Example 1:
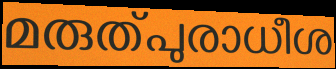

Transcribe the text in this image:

മരുത്പുരാധീശ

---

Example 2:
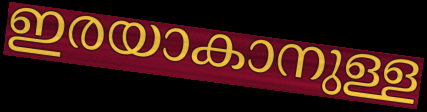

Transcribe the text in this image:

ഇരയാകാനുള്ള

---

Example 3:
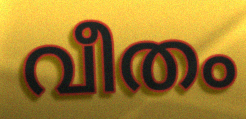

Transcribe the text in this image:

വീതം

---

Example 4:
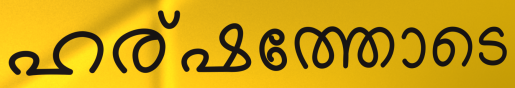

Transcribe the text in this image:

ഹര്ഷത്തോടെ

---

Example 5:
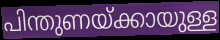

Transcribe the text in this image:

പിന്തുണയ്ക്കായുള്ള